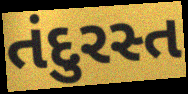
તંદુરસ્ત